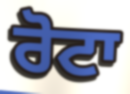
ਰੋਟਾ